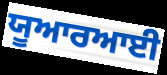
ਯੂਆਰਆਈ